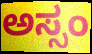
ಅಸ್ಸಂ